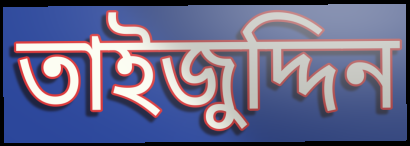
তাইজুদ্দিন